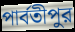
পার্বতীপুর